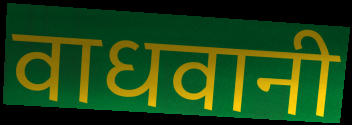
वाधवानी